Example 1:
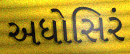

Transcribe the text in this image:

અધોસિરં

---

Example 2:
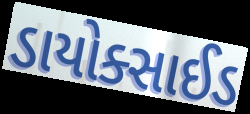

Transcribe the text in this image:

ડાયોક્સાઈડ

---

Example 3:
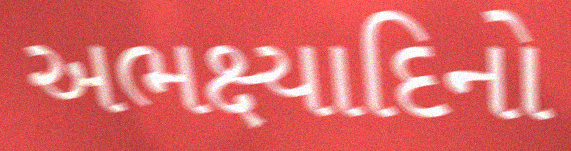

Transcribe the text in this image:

અભક્ષ્યાદિનો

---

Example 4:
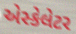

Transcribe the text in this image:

એસ્કેલેટર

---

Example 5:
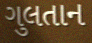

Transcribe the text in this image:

ગુલતાન